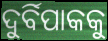
ଦୁର୍ବିପାକକୁ